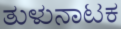
ತುಳುನಾಟಕ